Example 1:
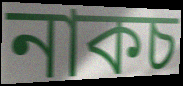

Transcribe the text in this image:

নাকচ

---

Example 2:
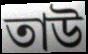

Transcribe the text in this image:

তাউ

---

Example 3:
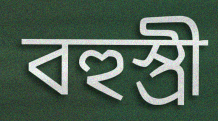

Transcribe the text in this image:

বহুস্ত্ৰী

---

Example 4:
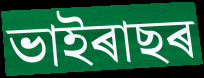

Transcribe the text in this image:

ভাইৰাছৰ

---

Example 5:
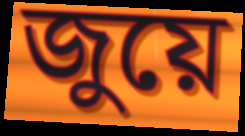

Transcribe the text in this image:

জুয়ে